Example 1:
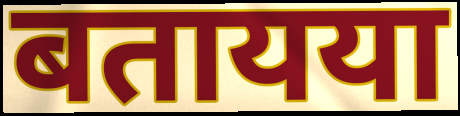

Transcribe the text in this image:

बतायया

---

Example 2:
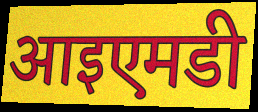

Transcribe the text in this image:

आइएमडी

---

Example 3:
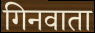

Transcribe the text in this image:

गिनवाता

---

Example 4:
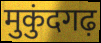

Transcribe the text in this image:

मुकुंदगढ़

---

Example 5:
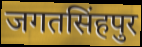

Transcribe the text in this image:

जगतसिंहपुर